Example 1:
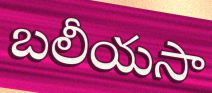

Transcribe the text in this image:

బలీయసా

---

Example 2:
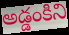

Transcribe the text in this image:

అడ్డంకిని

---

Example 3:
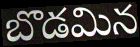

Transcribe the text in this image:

బొడమిన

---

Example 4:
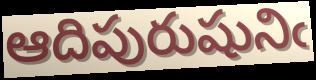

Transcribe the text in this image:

ఆదిపురుషునిఁ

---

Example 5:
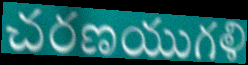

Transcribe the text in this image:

చరణయుగళి